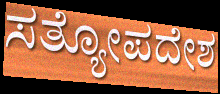
ಸತ್ಯೋಪದೇಶ